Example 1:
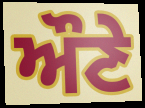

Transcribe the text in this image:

ਔਣੇ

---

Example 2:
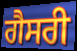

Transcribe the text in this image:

ਗੈਸਰੀ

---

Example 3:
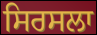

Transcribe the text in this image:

ਸਿਰਸਲਾ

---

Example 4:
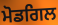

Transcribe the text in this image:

ਮੋਡਗਿਲ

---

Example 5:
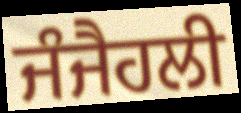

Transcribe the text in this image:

ਜੰਜੈਹਲੀ